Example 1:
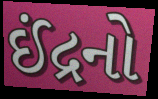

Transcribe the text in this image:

ઈંદ્રનો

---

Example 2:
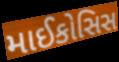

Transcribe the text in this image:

માઈકોસિસ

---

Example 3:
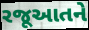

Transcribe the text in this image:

રજૂઆતને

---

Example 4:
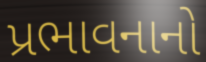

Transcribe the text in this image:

પ્રભાવનાનો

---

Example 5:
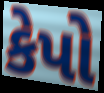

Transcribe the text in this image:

કેપો